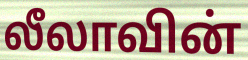
லீலாவின்